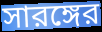
সারঙ্গের